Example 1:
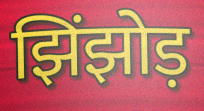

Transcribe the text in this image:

झिंझोड़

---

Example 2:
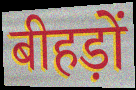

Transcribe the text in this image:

बीहड़ों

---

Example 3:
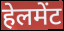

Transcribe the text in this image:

हेलमेंट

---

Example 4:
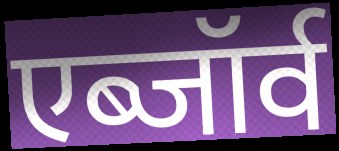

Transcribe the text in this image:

एब्जॉर्व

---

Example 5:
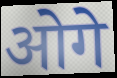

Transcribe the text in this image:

ओगे